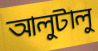
আলুটালু